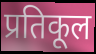
प्रतिकूल